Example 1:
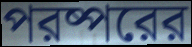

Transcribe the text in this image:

পরষ্পরের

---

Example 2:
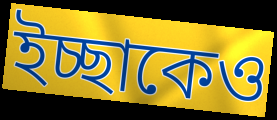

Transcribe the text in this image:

ইচ্ছাকেও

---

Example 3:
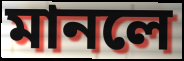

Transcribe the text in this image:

মানলে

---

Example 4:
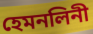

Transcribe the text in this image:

হেমনলিনী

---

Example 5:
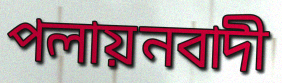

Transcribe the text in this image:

পলায়নবাদী